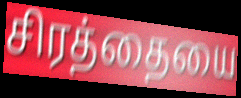
சிரத்தையை